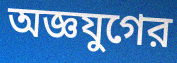
অজ্ঞযুগের